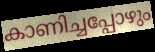
കാണിച്ചപ്പോഴും